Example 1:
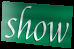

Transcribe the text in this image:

show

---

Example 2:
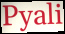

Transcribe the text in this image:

Pyali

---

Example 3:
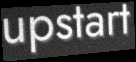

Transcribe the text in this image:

upstart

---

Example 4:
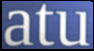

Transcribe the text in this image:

atu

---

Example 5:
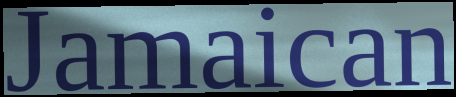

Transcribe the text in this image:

Jamaican